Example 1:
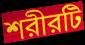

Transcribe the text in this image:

শরীরটি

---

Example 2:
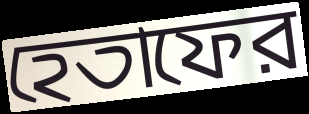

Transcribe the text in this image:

হেতাফের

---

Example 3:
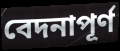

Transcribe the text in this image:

বেদনাপূর্ণ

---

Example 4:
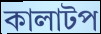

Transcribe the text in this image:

কালাটপ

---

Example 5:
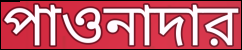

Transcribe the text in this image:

পাওনাদার